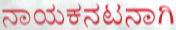
ನಾಯಕನಟನಾಗಿ